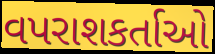
વપરાશકર્તાઓ